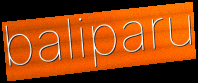
baliparu